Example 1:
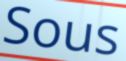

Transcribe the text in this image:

Sous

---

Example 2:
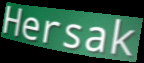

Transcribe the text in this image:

Hersak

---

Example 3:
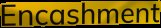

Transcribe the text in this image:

Encashment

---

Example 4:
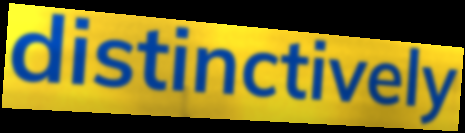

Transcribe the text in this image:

distinctively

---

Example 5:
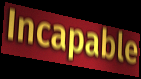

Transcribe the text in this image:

Incapable